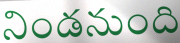
నిండనుంది